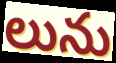
లును